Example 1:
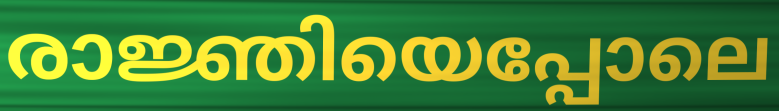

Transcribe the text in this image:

രാജ്ഞിയെപ്പോലെ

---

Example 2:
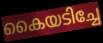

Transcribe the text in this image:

കൈയടിച്ചേ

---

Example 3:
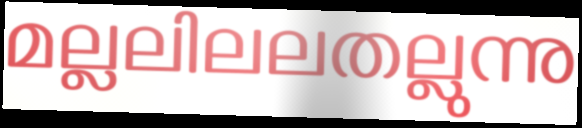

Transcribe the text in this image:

മല്ലലിലലതല്ലുന്നു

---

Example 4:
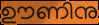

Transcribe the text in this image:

ഊണിനു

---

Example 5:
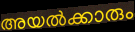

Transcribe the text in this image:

അയൽക്കാരും